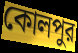
কোলপুর